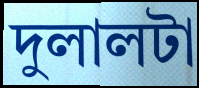
দুলালটা